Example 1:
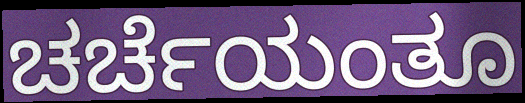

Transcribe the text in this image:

ಚರ್ಚೆಯಂತೂ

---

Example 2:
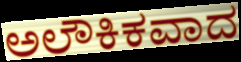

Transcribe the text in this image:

ಅಲೌಕಿಕವಾದ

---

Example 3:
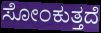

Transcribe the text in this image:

ಸೋಂಕುತ್ತದೆ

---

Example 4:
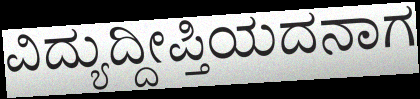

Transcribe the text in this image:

ವಿದ್ಯುದ್ದೀಪ್ತಿಯದನಾಗ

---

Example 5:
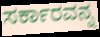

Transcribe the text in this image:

ಸರ್ಕಾರವನ್ನ